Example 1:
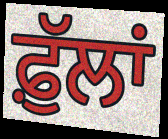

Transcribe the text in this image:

ਫ਼ੁੱਲਾਂ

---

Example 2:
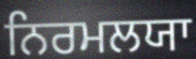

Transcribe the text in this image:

ਨਿਰਮਲਯਾ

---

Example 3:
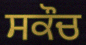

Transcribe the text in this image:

ਸਕੌਚ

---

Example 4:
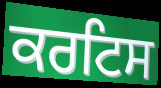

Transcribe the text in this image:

ਕਰਟਿਸ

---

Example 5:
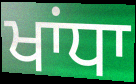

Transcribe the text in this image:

ਖਾਂਧਾ